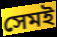
সেমই